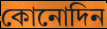
কোনোদিন